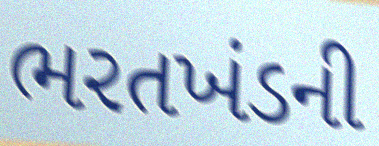
ભરતખંડની